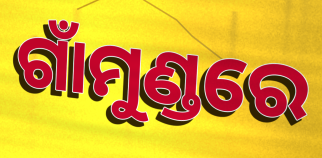
ଗାଁମୁଣ୍ଡରେ